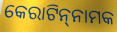
କେରାଟିନ୍‌ନାମକ